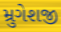
મ્રુગેશજી